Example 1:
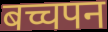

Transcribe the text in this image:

बच्चपन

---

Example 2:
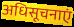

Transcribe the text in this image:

अधिसूचनाएं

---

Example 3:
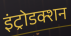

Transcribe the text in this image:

इंट्रोडक्शन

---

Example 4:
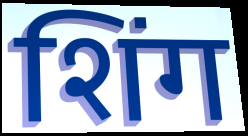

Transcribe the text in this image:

शिंग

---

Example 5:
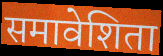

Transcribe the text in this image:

समावेशिता